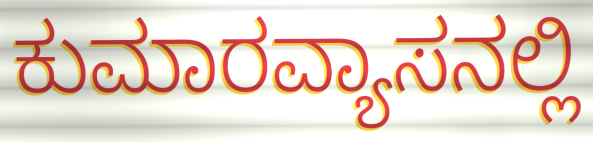
ಕುಮಾರವ್ಯಾಸನಲ್ಲಿ